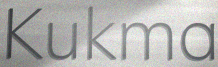
Kukma